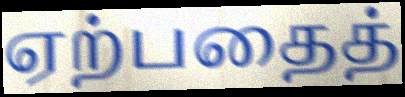
ஏற்பதைத்